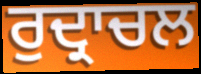
ਰੁਦ੍ਰਾਚਲ